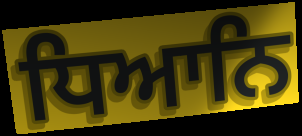
ਧਿਆਨਿ